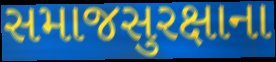
સમાજસુરક્ષાના